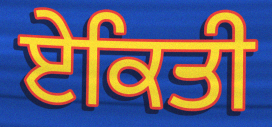
ਏਕਿਤੀ